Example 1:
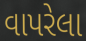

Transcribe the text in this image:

વાપરેલા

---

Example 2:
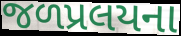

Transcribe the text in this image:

જળપ્રલયના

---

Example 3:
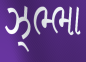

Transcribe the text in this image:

ઝ્ભ્ભા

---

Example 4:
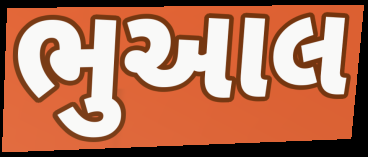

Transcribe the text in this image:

ભુઆલ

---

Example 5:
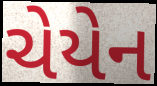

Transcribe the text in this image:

ચેયેન